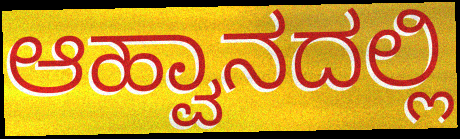
ಆಹ್ವಾನದಲ್ಲಿ